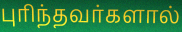
புரிந்தவர்களால்